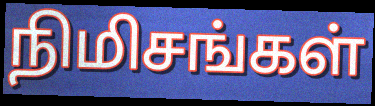
நிமிசங்கள்